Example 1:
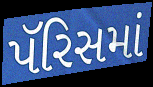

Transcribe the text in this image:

પૅરિસમાં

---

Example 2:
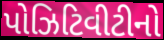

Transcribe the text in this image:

પોઝિટિવીટીનો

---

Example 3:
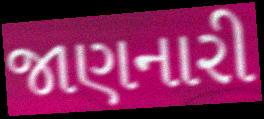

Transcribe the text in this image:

જાણનારી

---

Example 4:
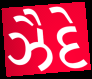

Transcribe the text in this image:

ઝૈદે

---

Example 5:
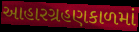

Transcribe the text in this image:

આહારગ્રહણકાળમાં